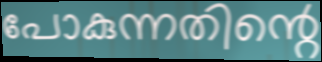
പോകുന്നതിന്റെ